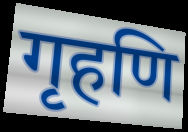
गृहणि